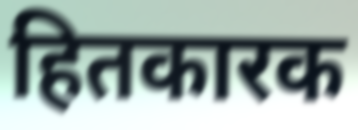
हितकारक